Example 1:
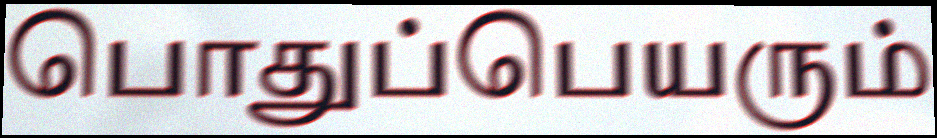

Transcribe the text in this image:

பொதுப்பெயரும்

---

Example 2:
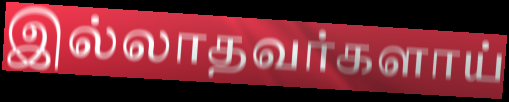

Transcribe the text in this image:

இல்லாதவர்களாய்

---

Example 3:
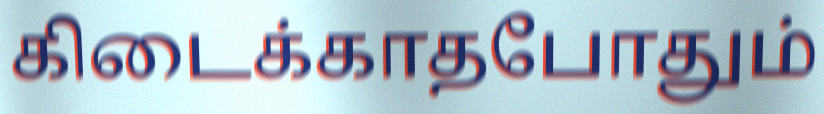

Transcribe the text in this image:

கிடைக்காதபோதும்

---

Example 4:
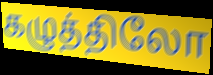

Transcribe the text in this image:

கழுத்திலோ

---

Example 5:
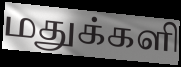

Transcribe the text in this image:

மதுக்களி